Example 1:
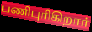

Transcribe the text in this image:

பணிபுரிகிறார்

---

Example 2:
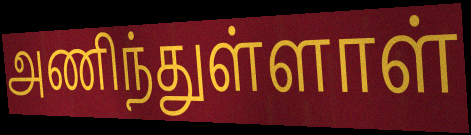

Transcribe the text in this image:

அணிந்துள்ளாள்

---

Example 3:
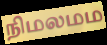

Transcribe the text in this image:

நிமலமம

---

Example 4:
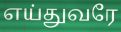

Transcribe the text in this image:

எய்துவரே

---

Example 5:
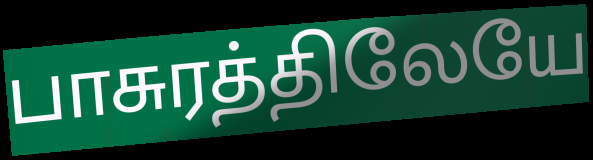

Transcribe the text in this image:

பாசுரத்திலேயே